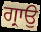
ਗ੍ਰਾਉ